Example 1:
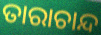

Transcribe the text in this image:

ତାରାଚାନ୍ଦ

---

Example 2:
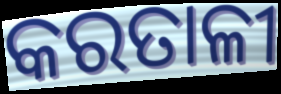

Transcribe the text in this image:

କରତାଳୀ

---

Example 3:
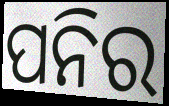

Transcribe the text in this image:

ପନିର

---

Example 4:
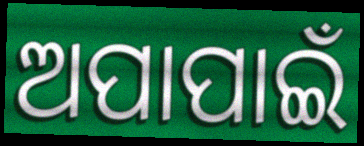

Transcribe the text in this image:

ଅପାପାଇଁ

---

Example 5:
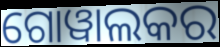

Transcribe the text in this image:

ଗୋୱାଲକର